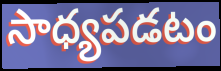
సాధ్యపడటం